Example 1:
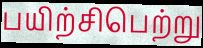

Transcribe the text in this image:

பயிற்சிபெற்று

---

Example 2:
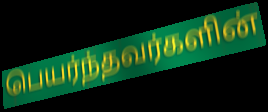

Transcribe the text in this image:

பெயர்ந்தவர்களின்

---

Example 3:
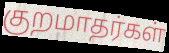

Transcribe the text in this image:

குறமாதர்கள்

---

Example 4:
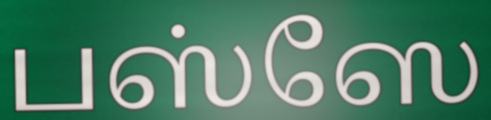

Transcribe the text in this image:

பஸ்ஸே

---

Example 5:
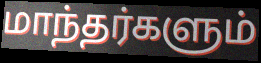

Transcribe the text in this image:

மாந்தர்களும்